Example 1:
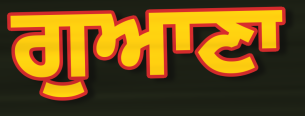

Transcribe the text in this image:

ਗੁਆਣਾ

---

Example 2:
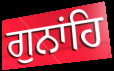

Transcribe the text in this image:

ਗੁਨਾਂਹਿ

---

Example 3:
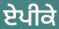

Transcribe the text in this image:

ਏਪੀਕੇ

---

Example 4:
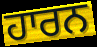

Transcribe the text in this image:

ਹਾਰਨ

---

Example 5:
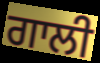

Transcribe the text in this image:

ਗਾਲੀ